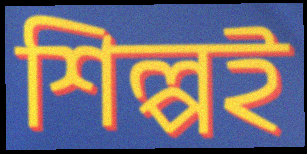
শিল্পই